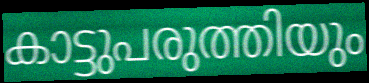
കാട്ടുപരുത്തിയും